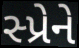
સ્પ્રેને